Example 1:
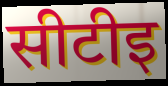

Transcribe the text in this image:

सीटीइ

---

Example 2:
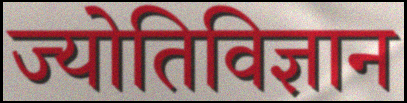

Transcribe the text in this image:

ज्योतिविज्ञान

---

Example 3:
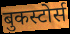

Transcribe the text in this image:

बुकस्टोर्स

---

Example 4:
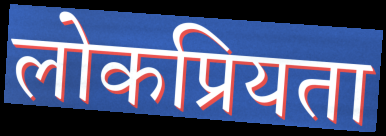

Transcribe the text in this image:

लोकप्रियता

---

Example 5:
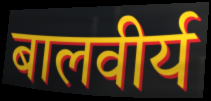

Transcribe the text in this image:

बालवीर्य